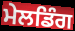
ਮੇਲਡਿੰਗ